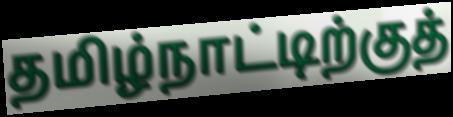
தமிழ்நாட்டிற்குத்